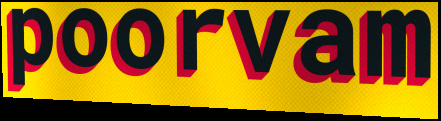
poorvam